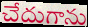
చేదుగాను